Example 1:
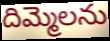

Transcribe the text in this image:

దిమ్మెలను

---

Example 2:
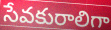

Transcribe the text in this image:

సేవకురాలిగా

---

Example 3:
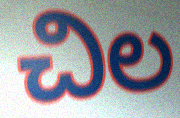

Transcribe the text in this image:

చిల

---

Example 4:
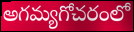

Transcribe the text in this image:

అగమ్యగోచరంలో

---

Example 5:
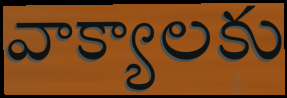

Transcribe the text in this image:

వాక్యాలకు